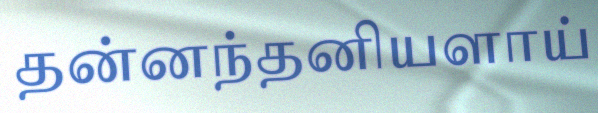
தன்னந்தனியளாய்